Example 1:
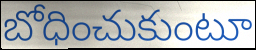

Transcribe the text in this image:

బోధించుకుంటూ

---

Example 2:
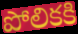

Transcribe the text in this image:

పోలికకి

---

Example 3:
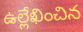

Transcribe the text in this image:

ఉల్లేఖించిన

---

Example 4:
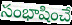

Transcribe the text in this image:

సంభాషించే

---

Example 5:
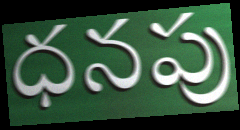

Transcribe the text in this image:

ధనపు